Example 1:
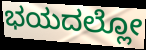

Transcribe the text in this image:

ಭಯದಲ್ಲೋ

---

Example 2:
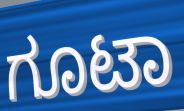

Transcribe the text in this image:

ಗೂಟಾ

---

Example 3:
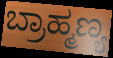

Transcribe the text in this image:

ಬ್ರಾಹ್ಮಣ್ಯ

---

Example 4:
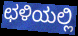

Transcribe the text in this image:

ಛಳಿಯಲ್ಲಿ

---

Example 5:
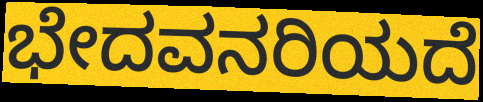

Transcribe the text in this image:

ಭೇದವನರಿಯದೆ